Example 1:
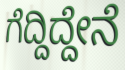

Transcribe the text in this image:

ಗೆದ್ದಿದ್ದೇನೆ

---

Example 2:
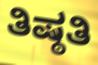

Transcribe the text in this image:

ತಿಷ್ಠತಿ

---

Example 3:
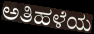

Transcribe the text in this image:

ಅತಿಹಳೆಯ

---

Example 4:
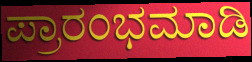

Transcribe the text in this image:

ಪ್ರಾರಂಭಮಾಡಿ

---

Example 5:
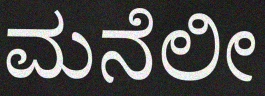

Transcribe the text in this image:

ಮನೆಲೀ